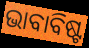
ଭାବାବିଷ୍ଟ